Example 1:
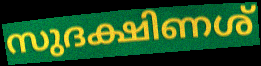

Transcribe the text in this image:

സുദക്ഷിണശ്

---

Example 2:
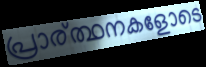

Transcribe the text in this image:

പ്രാര്ത്ഥനകളോടെ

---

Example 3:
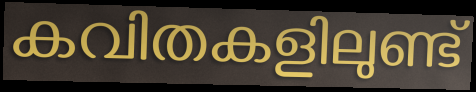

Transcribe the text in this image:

കവിതകളിലുണ്ട്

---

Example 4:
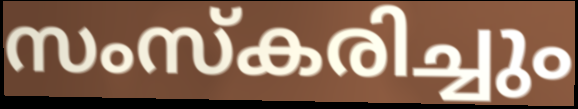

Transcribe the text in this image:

സംസ്കരിച്ചും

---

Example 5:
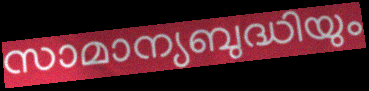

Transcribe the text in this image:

സാമാന്യബുദ്ധിയും